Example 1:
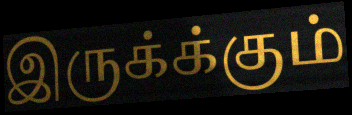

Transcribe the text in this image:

இருக்க்கும்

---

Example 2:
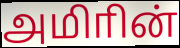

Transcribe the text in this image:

அமிரின்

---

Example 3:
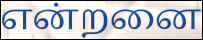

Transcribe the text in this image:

என்றனை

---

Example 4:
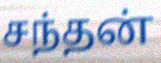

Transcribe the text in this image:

சந்தன்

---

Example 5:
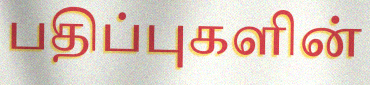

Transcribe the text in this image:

பதிப்புகளின்